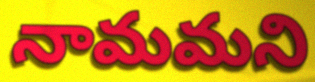
నామమని